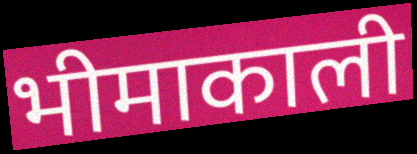
भीमाकाली